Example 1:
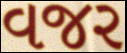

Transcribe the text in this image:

વજર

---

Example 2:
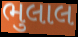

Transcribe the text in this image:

ભુલાલ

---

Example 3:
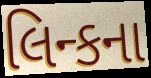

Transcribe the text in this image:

લિન્કના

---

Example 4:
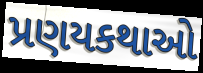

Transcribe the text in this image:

પ્રણયકથાઓ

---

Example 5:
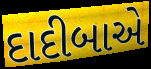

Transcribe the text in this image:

દાદીબાએ